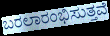
ಬರಲಾರಂಭಿಸುತ್ತವೆ